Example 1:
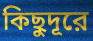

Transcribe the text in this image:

কিছুদূরে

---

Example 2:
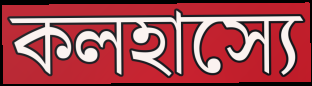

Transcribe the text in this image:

কলহাস্যে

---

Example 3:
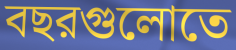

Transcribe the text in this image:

বছরগুলোতে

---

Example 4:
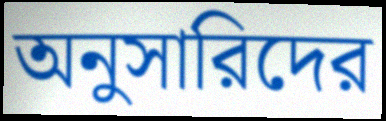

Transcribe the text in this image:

অনুসারিদের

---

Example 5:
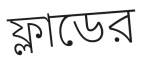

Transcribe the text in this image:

ফ্লাডের